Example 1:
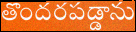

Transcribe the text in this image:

తొందరపడ్డాను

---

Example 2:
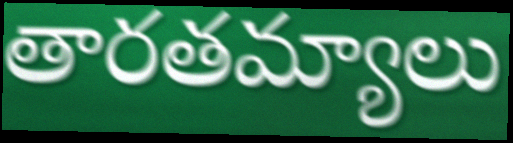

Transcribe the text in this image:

తారతమ్యాలు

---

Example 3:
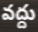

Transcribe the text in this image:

వద్దు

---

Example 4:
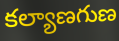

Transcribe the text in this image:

కల్యాణగుణ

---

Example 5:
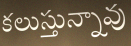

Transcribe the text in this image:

కలుస్తున్నావు